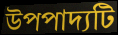
উপপাদ্যটি